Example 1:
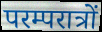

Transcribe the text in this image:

परम्परात्रों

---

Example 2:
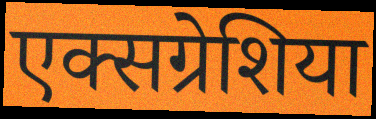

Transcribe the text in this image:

एक्सग्रेशिया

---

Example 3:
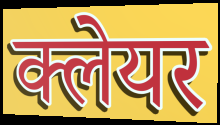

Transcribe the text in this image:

क्लेयर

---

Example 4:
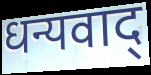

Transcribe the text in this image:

धन्यवाद्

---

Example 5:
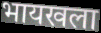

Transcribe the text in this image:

भायखला